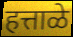
हत्ताळे